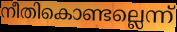
നീതികൊണ്ടല്ലെന്ന്